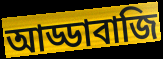
আড্ডাবাজি